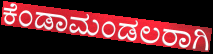
ಕೆಂಡಾಮಂಡಲರಾಗಿ